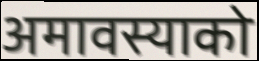
अमावस्याको